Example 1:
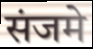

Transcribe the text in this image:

संजमे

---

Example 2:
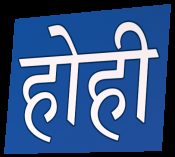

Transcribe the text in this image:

होही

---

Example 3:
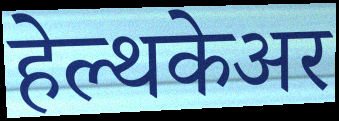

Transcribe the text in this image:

हेल्थकेअर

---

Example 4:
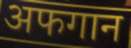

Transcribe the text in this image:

अफगान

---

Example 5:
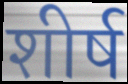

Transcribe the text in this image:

शीर्ष